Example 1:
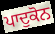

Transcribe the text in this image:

ਪਾਦੁਕੋਨ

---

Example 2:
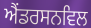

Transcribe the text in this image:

ਐਂਡਰਸਨਵਿਲ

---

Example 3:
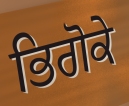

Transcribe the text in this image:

ਭਿਗੋਕੇ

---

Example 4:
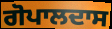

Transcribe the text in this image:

ਗੋਪਾਲਦਾਸ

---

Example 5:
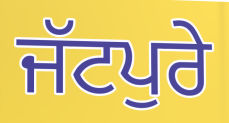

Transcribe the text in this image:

ਜੱਟਪੁਰੇ